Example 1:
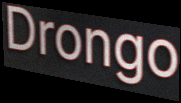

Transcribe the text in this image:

Drongo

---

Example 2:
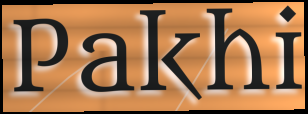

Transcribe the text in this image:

Pakhi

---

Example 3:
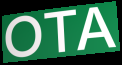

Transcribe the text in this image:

OTA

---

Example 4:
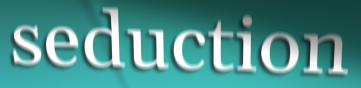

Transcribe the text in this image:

seduction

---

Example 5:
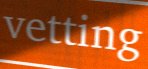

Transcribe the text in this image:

vetting